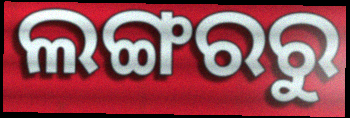
ଲଙ୍ଗରରୁ